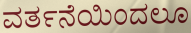
ವರ್ತನೆಯಿಂದಲೂ